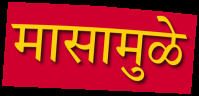
मासामुळे